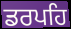
ਡਰਪਹਿ